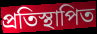
প্রতিস্থাপিত